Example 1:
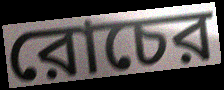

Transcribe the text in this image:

রোচের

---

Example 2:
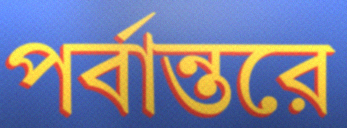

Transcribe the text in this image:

পর্বান্তরে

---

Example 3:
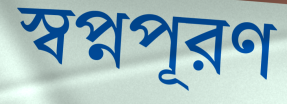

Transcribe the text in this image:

স্বপ্নপূরণ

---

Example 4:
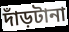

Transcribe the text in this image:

দাঁড়টানা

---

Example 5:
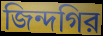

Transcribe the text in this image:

জিন্দগির